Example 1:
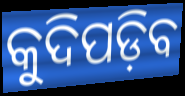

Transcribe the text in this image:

କୁଦିପଡ଼ିବ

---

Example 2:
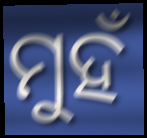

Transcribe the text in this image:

ମୁହଁ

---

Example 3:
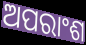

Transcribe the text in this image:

ଅପରାଂଶ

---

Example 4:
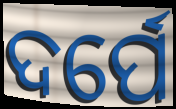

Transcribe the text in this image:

ଦର୍ପେ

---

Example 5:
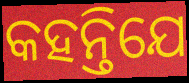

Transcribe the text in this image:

କହନ୍ତିଯେ